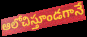
ఆలోచిస్తూండగానే